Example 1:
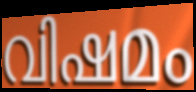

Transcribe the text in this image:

വിഷമം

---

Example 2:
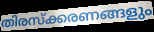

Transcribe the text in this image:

തിരസ്ക്കരണങ്ങളും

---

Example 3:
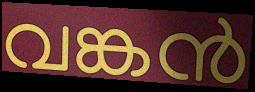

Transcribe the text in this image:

വങ്കൻ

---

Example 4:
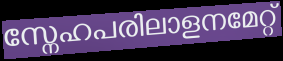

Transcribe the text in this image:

സ്നേഹപരിലാളനമേറ്റ്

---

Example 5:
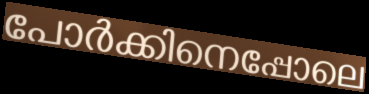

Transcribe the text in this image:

പോർക്കിനെപ്പോലെ